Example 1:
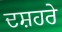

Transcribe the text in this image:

ਦਸ਼ਹਰੇ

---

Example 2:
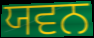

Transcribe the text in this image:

ਯਵਨ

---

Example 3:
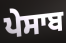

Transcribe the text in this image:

ਪੇਸਾਬ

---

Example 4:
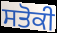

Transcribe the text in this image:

ਸਤੋਕੀ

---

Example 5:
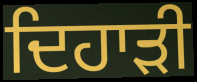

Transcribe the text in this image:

ਦਿਹਾੜੀ